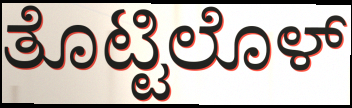
ತೊಟ್ಟಿಲೊಳ್